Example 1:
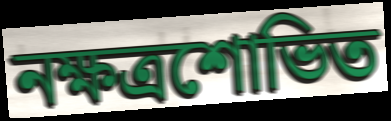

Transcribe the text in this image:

নক্ষত্রশোভিত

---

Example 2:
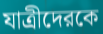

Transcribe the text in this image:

যাত্রীদেরকে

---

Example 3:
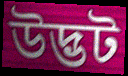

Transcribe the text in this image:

উদ্ভট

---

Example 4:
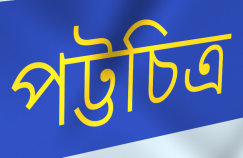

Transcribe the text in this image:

পট্টচিত্র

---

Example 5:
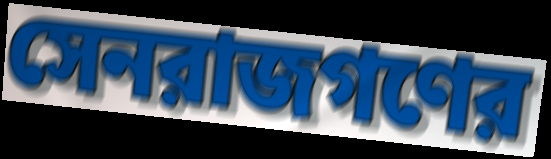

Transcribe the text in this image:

সেনরাজগণের